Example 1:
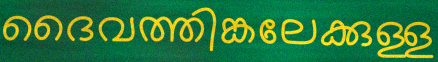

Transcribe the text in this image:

ദൈവത്തിങ്കലേക്കുള്ള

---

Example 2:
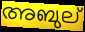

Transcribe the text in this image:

അബുല്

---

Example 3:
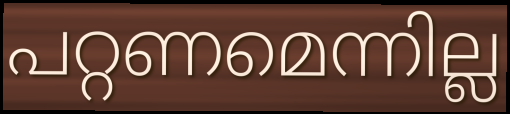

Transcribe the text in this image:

പറ്റണമെന്നില്ല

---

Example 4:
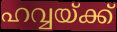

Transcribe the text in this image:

ഹവ്വയ്ക്ക്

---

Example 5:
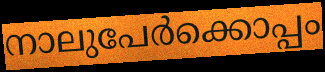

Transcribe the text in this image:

നാലുപേർക്കൊപ്പം